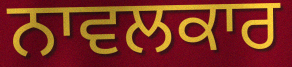
ਨਾਵਲਕਾਰ